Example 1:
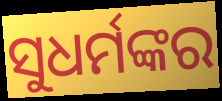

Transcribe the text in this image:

ସୁଧର୍ମଙ୍କର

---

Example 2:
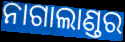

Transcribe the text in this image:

ନାଗାଲାଣ୍ଡର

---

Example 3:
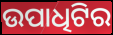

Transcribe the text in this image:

ଉପାଧିଟିର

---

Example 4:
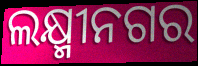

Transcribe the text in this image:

ଲକ୍ଷ୍ମୀନଗର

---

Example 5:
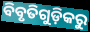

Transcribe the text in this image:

ବିବୃତିଗୁଡ଼ିକରୁ